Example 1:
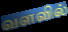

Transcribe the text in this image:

வளவில்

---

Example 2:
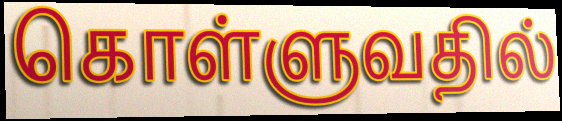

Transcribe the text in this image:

கொள்ளுவதில்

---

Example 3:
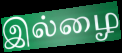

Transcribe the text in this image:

இல்ழை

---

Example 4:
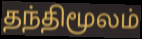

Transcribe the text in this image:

தந்திமூலம்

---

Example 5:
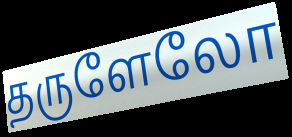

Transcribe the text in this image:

தருளேலோ